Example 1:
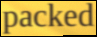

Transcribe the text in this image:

packed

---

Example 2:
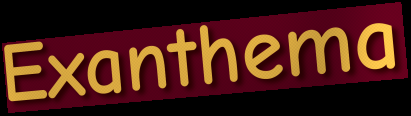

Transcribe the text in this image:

Exanthema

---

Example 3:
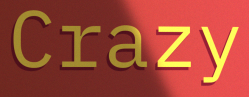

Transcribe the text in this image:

Crazy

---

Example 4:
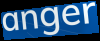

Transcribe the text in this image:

anger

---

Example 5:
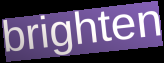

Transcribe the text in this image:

brighten